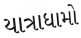
યાત્રાધામો